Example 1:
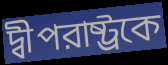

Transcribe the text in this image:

দ্বীপরাষ্ট্রকে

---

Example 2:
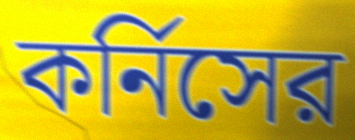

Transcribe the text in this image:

কর্নিসের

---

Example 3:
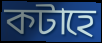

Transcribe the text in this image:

কটাহে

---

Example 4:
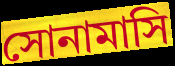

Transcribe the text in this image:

সোনামাসি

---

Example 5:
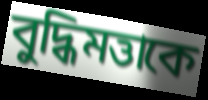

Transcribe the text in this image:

বুদ্ধিমত্তাকে